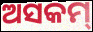
ଅସକମ୍